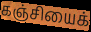
கஞ்சியைக்